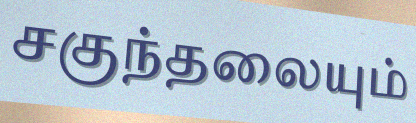
சகுந்தலையும்